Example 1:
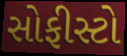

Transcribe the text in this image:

સોફીસ્ટો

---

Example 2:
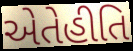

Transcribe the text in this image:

એતેહીતિ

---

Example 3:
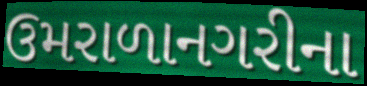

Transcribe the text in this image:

ઉમરાળાનગરીના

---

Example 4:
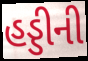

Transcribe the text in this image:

હડ્ડીની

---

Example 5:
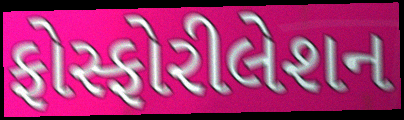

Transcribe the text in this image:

ફોસ્ફોરીલેશન